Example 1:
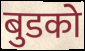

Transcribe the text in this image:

बुडको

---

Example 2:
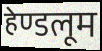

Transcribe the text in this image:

हेण्डलूम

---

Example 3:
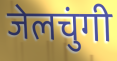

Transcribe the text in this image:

जेलचुंगी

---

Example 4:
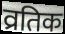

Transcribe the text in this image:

व्रतिक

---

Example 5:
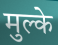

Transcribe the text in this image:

मुल्के